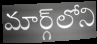
మార్గ్‌లోని